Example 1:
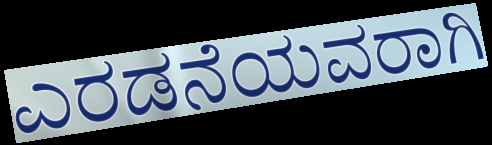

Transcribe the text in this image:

ಎರಡನೆಯವರಾಗಿ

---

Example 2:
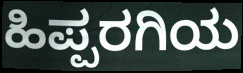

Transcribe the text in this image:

ಹಿಪ್ಪರಗಿಯ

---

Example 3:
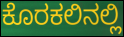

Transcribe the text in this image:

ಕೊರಕಲಿನಲ್ಲಿ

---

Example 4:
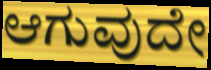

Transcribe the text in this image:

ಆಗುವುದೇ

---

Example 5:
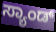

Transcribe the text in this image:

ಸ್ಯಾಂಡ್